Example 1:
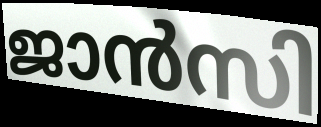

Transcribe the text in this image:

ജാൻസി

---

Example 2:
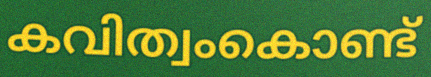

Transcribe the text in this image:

കവിത്വംകൊണ്ട്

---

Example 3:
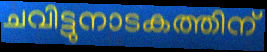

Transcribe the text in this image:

ചവിട്ടുനാടകത്തിന്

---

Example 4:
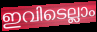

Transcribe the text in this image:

ഇവിടെല്ലാം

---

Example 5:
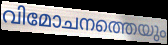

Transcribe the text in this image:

വിമോചനത്തെയും